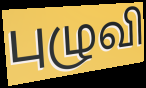
புழுவி